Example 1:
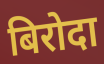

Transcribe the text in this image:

बिरोदा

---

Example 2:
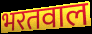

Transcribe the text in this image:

भरतवाल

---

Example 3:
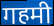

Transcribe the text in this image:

गहमी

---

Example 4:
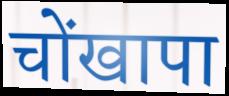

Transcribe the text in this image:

चोंखापा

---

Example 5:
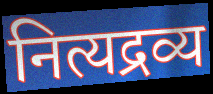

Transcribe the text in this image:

नित्यद्रव्य